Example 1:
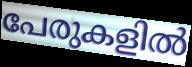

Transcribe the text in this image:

പേരുകളിൽ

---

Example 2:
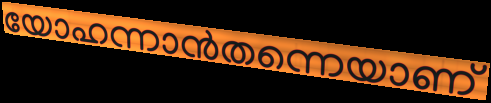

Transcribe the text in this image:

യോഹന്നാൻതന്നെയാണ്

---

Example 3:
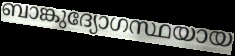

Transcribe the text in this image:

ബാങ്കുദ്യോഗസ്ഥയായ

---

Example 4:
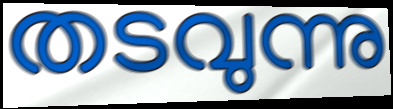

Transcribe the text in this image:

തടവുന്നു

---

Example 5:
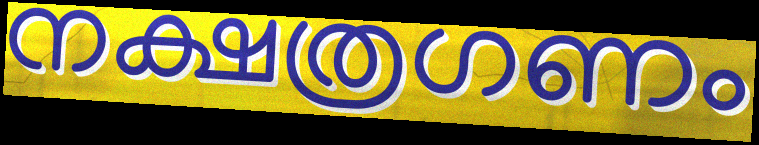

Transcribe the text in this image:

നക്ഷത്രഗണം